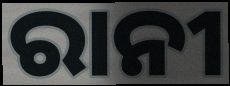
ରାନୀ